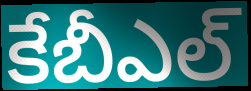
కేబీఎల్